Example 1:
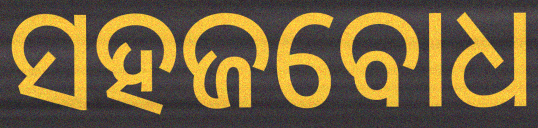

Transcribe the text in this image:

ସହଜବୋଧ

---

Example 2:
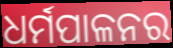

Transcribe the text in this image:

ଧର୍ମପାଳନର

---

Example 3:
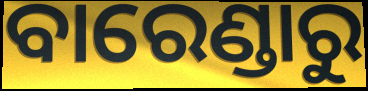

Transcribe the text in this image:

ବାରେଣ୍ଡାରୁ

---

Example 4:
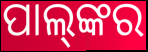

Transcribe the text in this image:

ପାଲ୍‍ଙ୍କର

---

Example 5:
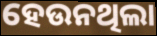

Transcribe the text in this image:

ହେଉନଥିଲା